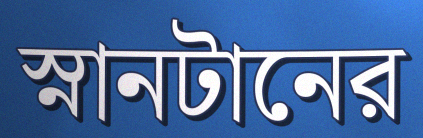
স্নানটানের